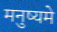
मनुष्यमे